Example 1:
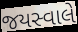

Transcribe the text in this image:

જયસ્વાલે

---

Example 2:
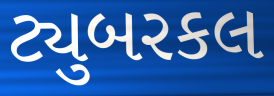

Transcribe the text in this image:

ટ્યુબરકલ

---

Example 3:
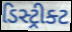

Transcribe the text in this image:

ડિસ્ટ્રીક્ટ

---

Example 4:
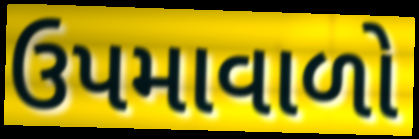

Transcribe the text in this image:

ઉપમાવાળો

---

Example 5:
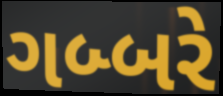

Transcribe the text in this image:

ગબ્બરે